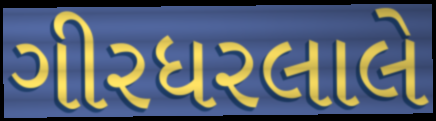
ગીરધરલાલે